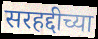
सरहद्दीच्या